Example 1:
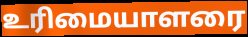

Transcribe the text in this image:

உரிமையாளரை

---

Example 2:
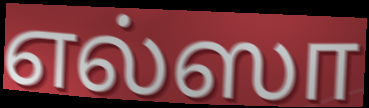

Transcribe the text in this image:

எல்ஸா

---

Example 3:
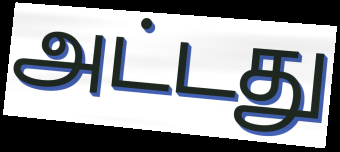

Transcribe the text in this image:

அட்டது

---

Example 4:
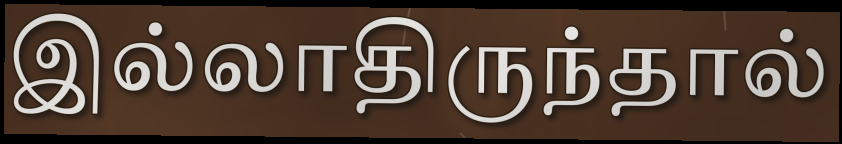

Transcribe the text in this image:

இல்லாதிருந்தால்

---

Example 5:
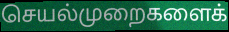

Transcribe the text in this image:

செயல்முறைகளைக்